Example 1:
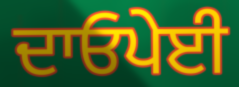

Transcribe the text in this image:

ਦਾਓਪੇਈ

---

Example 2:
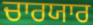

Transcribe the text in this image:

ਚਾਰਯਾਰ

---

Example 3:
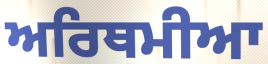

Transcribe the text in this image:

ਅਰਿਥਮੀਆ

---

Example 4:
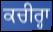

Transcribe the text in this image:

ਕਚੀਰ੍ਹਾ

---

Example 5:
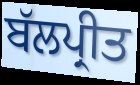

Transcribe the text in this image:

ਬੱਲਪ੍ਰੀਤ